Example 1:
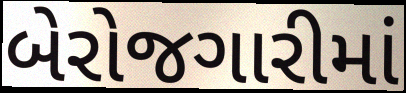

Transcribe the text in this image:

બેરોજગારીમાં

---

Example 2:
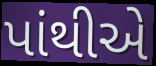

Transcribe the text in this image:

પાંથીએ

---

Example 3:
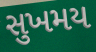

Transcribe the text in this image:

સુખમય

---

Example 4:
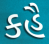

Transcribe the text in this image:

કહૈ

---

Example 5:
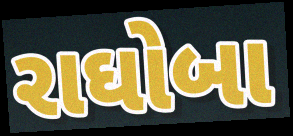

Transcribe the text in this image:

રાઘોબા